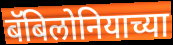
बॅबिलोनियाच्या